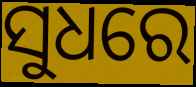
ସୁଧରେ